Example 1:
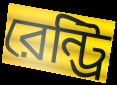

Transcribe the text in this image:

রেন্ট্রি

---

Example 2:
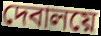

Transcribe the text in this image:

দেবালয়ে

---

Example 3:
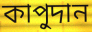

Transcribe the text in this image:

কাপুদান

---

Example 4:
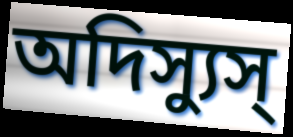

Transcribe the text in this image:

অদিস্যুস্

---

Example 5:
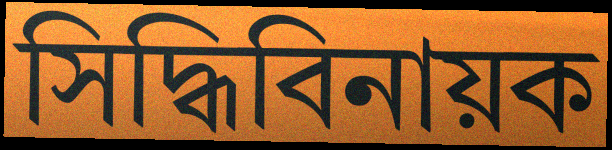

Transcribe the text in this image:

সিদ্ধিবিনায়ক